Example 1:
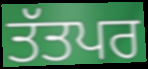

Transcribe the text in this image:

ਤੱਤਪਰ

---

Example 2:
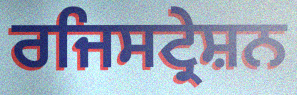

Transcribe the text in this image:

ਰਜਿਸਟ੍ਰੇਸ਼ਨ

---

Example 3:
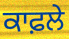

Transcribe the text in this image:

ਕਾਫ਼ਲੇ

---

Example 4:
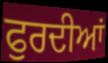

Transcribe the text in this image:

ਫੁਰਦੀਆਂ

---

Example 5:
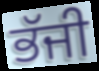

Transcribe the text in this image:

ਭੱਜੀ